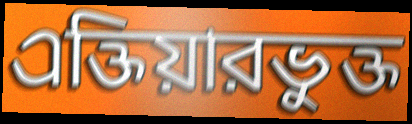
এক্তিয়ারভুক্ত